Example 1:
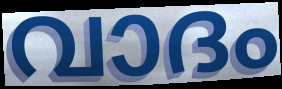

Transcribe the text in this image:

വാദം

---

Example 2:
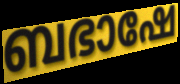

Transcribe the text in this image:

ബഭാഷേ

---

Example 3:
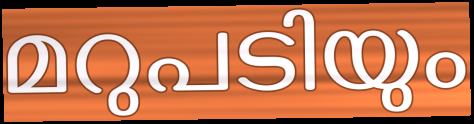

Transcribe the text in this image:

മറുപടിയും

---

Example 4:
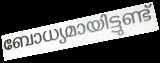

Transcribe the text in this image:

ബോധ്യമായിട്ടുണ്ട്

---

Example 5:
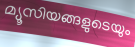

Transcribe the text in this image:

മ്യൂസിയങ്ങളുടെയും